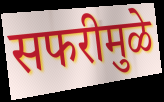
सफरीमुळे